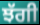
ਝੱਗੀ